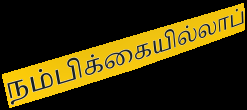
நம்பிக்கையில்லாப்